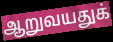
ஆறுவயதுக்